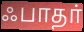
ஃபாதர்